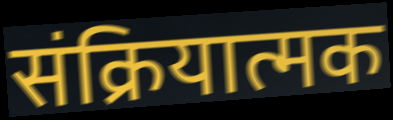
संक्रियात्मक